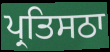
ਪ੍ਰਤਿਸਠਾ